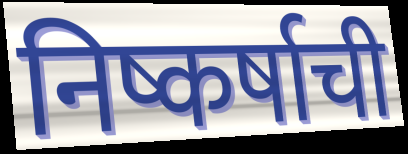
निष्कर्षाची